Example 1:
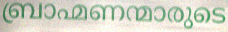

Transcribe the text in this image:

ബ്രാഹ്മണന്മാരുടെ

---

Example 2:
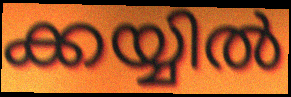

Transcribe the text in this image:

ക്കയ്യിൽ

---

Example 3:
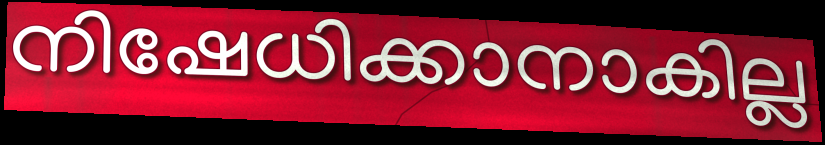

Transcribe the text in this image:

നിഷേധിക്കാനാകില്ല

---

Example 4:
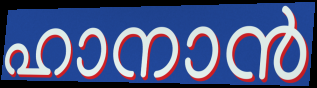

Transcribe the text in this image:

ഹാനാൻ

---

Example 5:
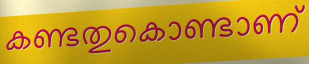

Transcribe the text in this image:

കണ്ടതുകൊണ്ടാണ്